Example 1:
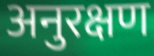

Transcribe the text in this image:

अनुरक्षण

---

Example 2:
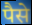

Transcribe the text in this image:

पैसे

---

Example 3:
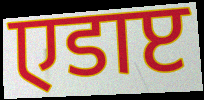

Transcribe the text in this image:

एडाप्ट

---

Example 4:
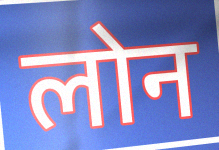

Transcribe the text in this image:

लोन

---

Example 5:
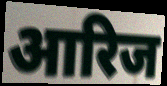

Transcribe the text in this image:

आरिज